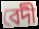
বেদী